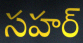
సహర్